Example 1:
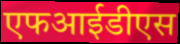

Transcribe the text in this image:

एफआईडीएस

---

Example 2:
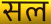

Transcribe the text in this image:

सल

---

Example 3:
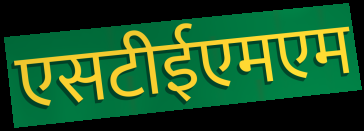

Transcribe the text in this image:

एसटीईएमएम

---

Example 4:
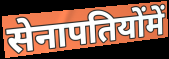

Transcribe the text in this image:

सेनापतियोंमें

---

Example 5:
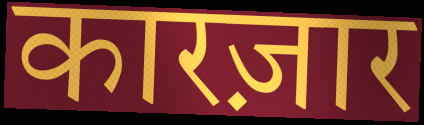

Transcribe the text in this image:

कारज़ार